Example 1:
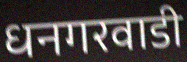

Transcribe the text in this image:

धनगरवाडी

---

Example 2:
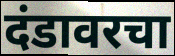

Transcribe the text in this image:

दंडावरचा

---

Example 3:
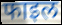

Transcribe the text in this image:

फाइल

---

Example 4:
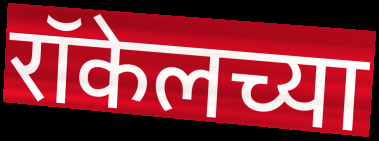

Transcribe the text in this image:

रॉकेलच्या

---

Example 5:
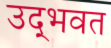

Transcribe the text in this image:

उद्‌भवत